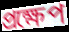
প্রক্ষেপ